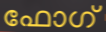
ഫോഗ്